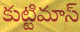
కుట్టిమాస్